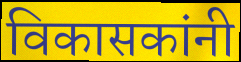
विकासकांनी